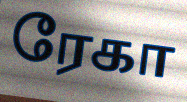
ரேகா